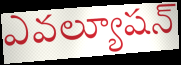
ఎవల్యూషన్